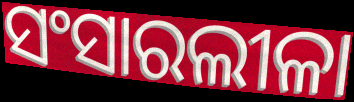
ସଂସାରଲୀଳା